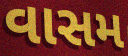
વાસમ